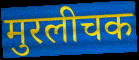
मुरलीचक